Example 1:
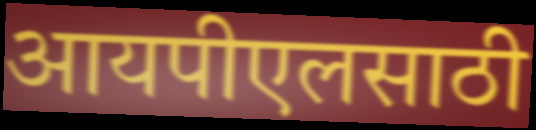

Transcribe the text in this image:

आयपीएलसाठी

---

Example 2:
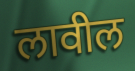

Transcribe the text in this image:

लावील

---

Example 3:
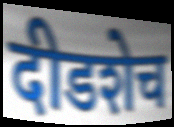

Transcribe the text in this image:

दीडशेच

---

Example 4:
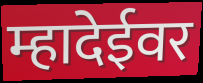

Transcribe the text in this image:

म्हादेईवर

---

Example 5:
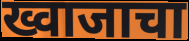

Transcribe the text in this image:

ख्वाजाचा